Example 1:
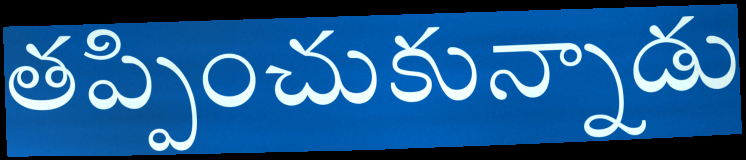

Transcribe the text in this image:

తప్పించుకున్నాడు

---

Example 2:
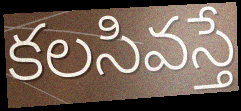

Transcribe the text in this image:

కలసివస్తే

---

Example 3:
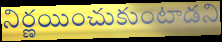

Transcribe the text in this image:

నిర్ణయించుకుంటాడని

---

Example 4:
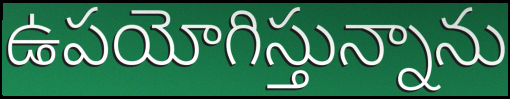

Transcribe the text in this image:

ఉపయోగిస్తున్నాను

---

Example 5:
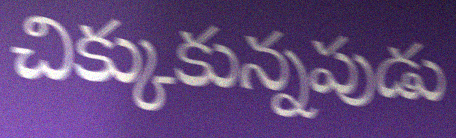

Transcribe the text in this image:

చిక్కుకున్నపుడు